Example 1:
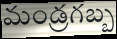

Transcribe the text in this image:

మండ్రగబ్బ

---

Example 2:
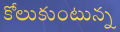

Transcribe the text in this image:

కోలుకుంటున్న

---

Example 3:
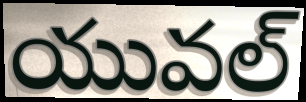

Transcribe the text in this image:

యువల్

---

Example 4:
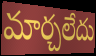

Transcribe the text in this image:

మార్చలేదు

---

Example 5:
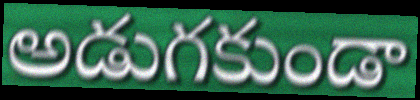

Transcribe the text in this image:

అడుగకుండా